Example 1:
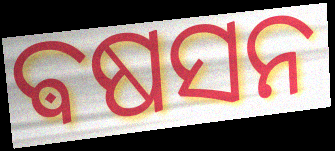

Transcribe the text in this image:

ଵଷସନ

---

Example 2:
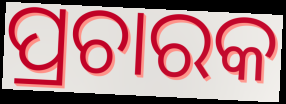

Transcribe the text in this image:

ପ୍ରଚାରକ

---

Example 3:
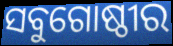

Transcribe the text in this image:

ସବୁଗୋଷ୍ଠୀର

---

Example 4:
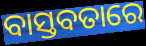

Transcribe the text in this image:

ବାସ୍ତବତାରେ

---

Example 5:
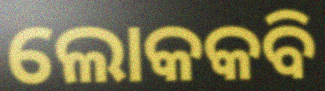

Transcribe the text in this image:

ଲୋକକବି